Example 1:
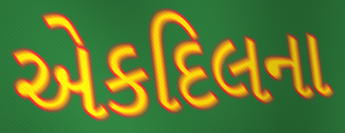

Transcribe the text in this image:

એકદિલના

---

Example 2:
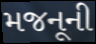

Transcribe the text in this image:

મજનૂની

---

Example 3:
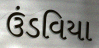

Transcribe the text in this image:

ઉંડવિયા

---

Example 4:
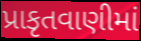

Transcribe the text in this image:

પ્રાકૃતવાણીમાં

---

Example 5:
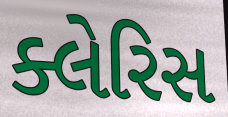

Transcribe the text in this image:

ક્લેરિસ